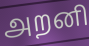
அறனி